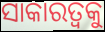
ସାକାରତ୍ଵକୁ